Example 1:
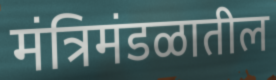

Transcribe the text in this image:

मंत्रिमंडळातील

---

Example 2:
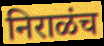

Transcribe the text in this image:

निराळंच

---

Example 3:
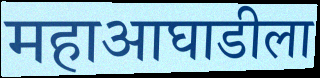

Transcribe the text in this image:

महाआघाडीला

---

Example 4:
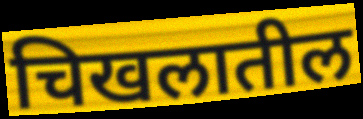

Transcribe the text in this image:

चिखलातील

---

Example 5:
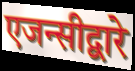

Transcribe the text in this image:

एजन्सीद्वारे